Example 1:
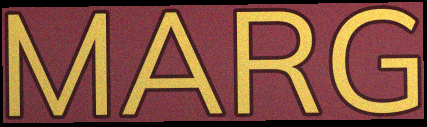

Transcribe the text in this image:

MARG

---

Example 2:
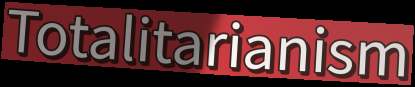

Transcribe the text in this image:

Totalitarianism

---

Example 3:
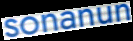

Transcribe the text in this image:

sonanun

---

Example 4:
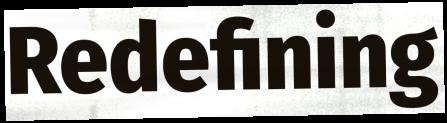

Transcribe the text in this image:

Redefining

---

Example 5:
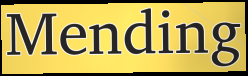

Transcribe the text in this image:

Mending